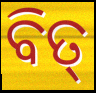
ବିତ୍